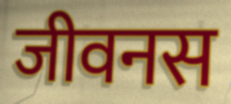
जीवनस